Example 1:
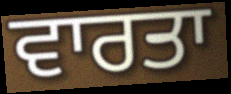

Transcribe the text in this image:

ਵਾਰਤਾ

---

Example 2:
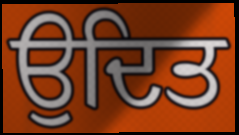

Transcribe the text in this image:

ਉਦਿਤ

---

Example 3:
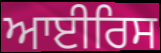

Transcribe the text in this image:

ਆਈਰਿਸ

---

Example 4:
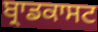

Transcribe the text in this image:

ਬ੍ਰਾਡਕਾਸਟ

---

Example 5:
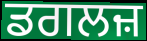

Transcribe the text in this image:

ਡਗਲਜ਼